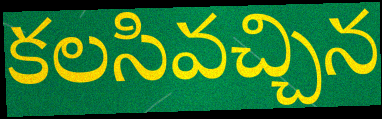
కలసివచ్చిన